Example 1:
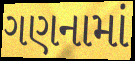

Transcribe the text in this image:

ગણનામાં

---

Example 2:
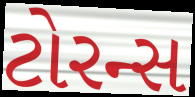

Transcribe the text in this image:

ટોરન્સ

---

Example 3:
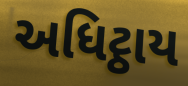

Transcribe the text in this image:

અધિટ્ઠાય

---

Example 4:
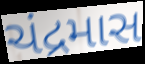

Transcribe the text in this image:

ચંદ્રમાસ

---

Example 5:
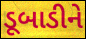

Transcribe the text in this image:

ડૂબાડીને